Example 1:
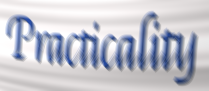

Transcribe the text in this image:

Practicality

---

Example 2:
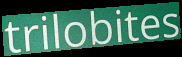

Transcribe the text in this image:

trilobites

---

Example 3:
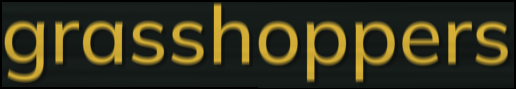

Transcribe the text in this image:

grasshoppers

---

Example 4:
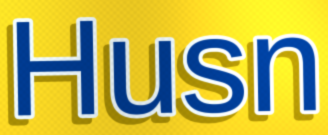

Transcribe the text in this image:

Husn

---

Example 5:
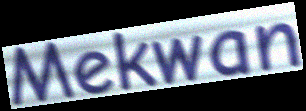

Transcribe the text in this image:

Mekwan